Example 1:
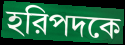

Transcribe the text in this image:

হরিপদকে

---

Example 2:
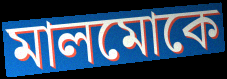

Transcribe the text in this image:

মালমোকে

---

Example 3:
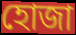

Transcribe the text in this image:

হোজা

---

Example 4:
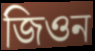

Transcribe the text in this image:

জিওন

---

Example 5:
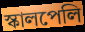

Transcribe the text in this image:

স্কালপেলি